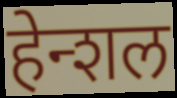
हेन्शल